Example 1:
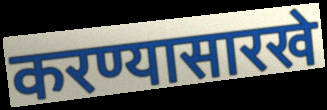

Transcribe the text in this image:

करण्यासारखे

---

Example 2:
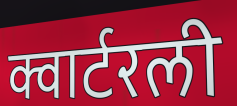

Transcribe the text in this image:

क्वार्टरली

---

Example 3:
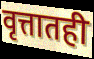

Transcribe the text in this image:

वृत्तातही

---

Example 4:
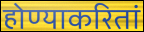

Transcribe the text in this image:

होण्याकरितां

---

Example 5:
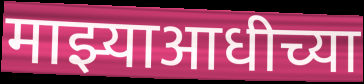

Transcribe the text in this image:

माझ्याआधीच्या